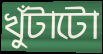
খুঁটাটো